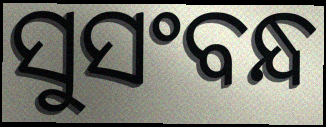
ସୁସଂବନ୍ଧ